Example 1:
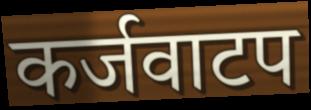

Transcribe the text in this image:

कर्जवाटप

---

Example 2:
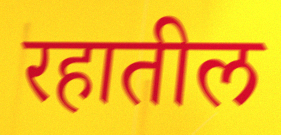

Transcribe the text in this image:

रहातील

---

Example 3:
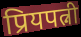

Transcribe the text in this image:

प्रियपत्नी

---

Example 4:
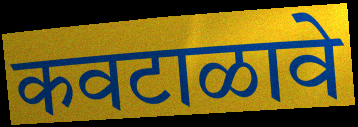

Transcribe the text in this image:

कवटाळावे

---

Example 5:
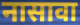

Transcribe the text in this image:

नासावा